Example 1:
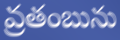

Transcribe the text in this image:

వ్రతంబును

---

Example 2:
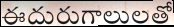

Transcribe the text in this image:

ఈదురుగాలులతో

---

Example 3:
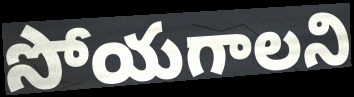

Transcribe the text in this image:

సోయగాలని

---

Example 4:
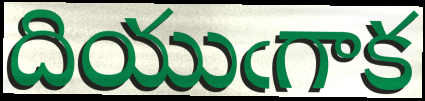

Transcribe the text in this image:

దియుఁగాక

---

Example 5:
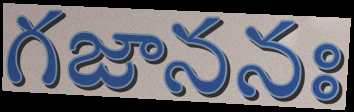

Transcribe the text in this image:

గజాననః